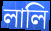
লালি